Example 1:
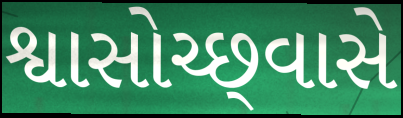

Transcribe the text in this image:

શ્વાસોચ્છ્‍વાસે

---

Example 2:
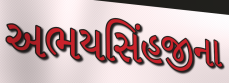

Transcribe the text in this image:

અભયસિંહજીના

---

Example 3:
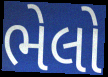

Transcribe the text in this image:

ભેલો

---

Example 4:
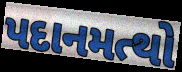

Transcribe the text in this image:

પદાનમત્થો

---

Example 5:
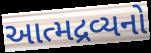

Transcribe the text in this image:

આત્મદ્રવ્યનો